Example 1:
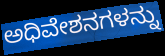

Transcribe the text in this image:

ಅಧಿವೇಶನಗಳನ್ನು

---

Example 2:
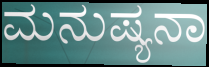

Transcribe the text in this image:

ಮನುಷ್ಯನಾ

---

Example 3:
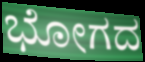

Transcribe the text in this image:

ಭೋಗದ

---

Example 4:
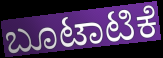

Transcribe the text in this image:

ಬೂಟಾಟಿಕೆ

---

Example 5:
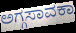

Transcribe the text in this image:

ಅಗ್ಗಸಾವಕಾ